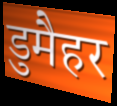
डुमैहर